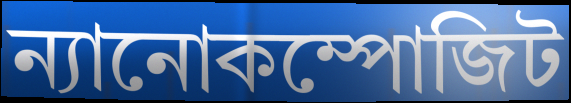
ন্যানোকম্পোজিট